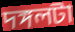
দঙ্গলটা